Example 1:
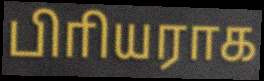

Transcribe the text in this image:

பிரியராக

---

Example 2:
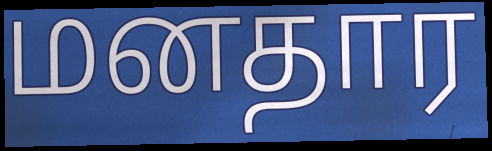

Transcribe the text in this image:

மனதார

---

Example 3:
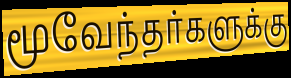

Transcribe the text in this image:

மூவேந்தர்களுக்கு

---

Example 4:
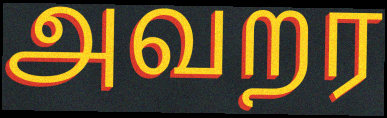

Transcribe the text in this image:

அவறர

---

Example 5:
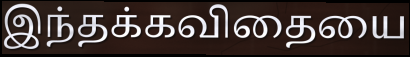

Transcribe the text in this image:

இந்தக்கவிதையை